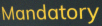
Mandatory